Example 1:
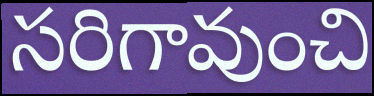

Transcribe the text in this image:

సరిగావుంచి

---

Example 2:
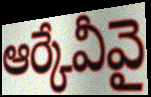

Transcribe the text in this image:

ఆర్కేవీవై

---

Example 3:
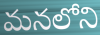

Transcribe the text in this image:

మనలోని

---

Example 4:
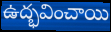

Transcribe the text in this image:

ఉద్భవించాయి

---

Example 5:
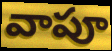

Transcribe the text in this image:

వాపూ